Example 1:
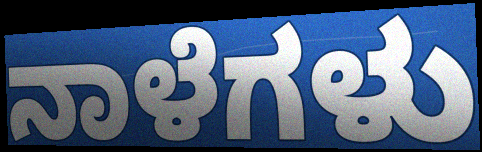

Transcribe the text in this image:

ನಾಳೆಗಳು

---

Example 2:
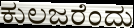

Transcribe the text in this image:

ಕುಲಜರೆಂದು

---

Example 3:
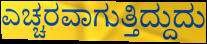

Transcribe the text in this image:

ಎಚ್ಚರವಾಗುತ್ತಿದ್ದುದು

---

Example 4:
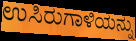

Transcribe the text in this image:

ಉಸಿರುಗಾಳಿಯನ್ನು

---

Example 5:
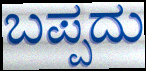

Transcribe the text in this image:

ಬಪ್ಪದು